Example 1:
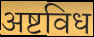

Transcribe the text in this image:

अष्टविध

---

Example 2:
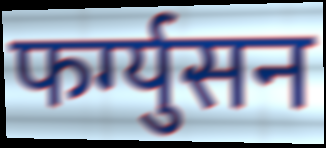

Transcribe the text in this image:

फर्ग्युसन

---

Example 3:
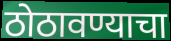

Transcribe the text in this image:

ठोठावण्याचा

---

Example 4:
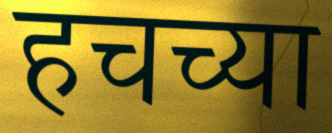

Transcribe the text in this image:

हचच्या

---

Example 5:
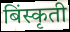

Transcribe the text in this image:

बिंस्कृती